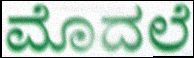
ಮೊದಲೆ